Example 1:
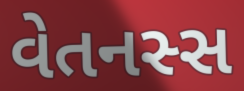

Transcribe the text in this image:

વેતનસ્સ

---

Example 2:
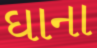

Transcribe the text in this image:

ઘાના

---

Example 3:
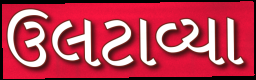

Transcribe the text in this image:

ઉલટાવ્યા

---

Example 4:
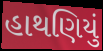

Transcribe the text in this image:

હાથણિયું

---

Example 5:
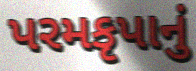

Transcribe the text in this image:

પરમકૃપાનું